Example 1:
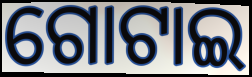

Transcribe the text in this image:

ଗୋଟାଇ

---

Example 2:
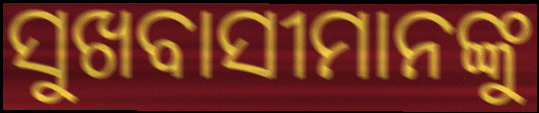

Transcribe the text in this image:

ସୁଖବାସୀମାନଙ୍କୁ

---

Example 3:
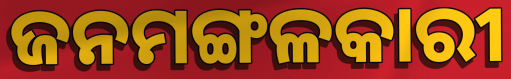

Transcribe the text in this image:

ଜନମଙ୍ଗଳକାରୀ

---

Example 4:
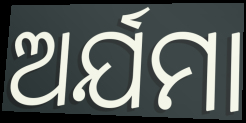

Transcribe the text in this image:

ଅର୍ଯମା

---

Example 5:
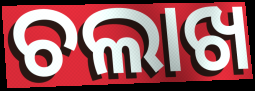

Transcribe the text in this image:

ଚଲାଖ